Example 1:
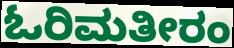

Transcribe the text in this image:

ಓರಿಮತೀರಂ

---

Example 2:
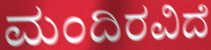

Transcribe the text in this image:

ಮಂದಿರವಿದೆ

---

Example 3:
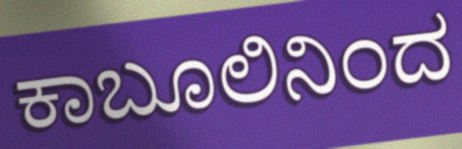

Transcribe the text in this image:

ಕಾಬೂಲಿನಿಂದ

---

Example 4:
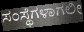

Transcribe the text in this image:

ಸಂಸ್ಥೆಗಳಾಗಲೀ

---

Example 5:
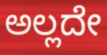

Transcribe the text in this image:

ಅಲ್ಲದೇ